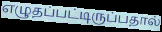
எழுதப்பட்டிருப்பதால்